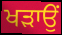
ਖੜਾਉਂ